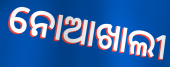
ନୋଆଖାଲୀ